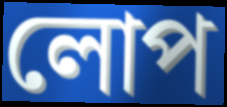
লোপ